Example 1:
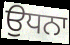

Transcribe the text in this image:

ਉਧਨਾ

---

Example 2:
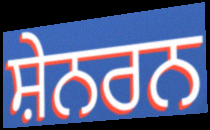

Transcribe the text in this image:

ਸ਼ੇਨਰਨ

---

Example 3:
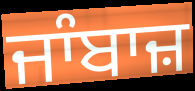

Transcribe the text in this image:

ਜਾੰਬਾਜ਼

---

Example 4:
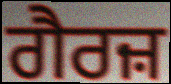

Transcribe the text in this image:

ਗੈਰਜ਼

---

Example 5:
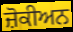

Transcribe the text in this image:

ਜ਼ੋਕੀਅਨ